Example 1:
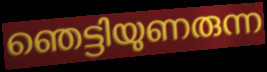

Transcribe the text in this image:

ഞെട്ടിയുണരുന്ന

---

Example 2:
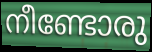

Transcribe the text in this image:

നീണ്ടോരു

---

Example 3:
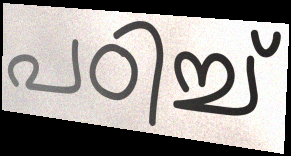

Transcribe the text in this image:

പഠിച്ച്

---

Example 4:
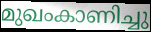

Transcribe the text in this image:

മുഖംകാണിച്ചു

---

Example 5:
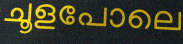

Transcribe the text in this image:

ചൂളപോലെ